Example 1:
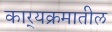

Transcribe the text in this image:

कार्यक्रमातील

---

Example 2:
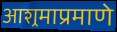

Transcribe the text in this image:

आश्रमाप्रमाणे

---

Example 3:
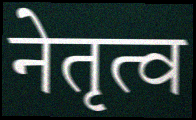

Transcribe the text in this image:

नेतृत्व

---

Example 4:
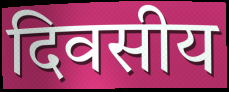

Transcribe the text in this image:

दिवसीय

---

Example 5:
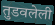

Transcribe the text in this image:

तुडवलेली